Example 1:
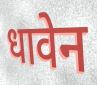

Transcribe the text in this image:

धावेन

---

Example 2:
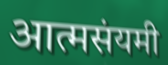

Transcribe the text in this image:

आत्मसंयमी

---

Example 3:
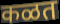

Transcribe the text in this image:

कळत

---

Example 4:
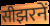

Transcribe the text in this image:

सीझरनें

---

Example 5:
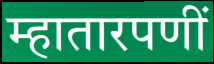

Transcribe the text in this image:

म्हातारपणीं